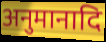
अनुमानादि